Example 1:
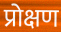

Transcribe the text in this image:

प्रोक्षण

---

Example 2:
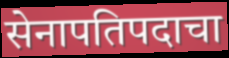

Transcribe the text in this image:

सेनापतिपदाचा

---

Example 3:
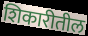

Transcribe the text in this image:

शिकारीतील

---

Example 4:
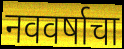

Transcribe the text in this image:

नववर्षाचा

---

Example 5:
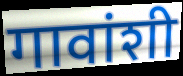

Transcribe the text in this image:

गावांशी